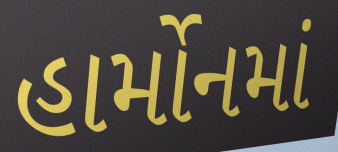
હાર્મોનમાં